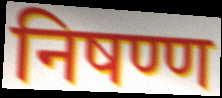
निषण्ण